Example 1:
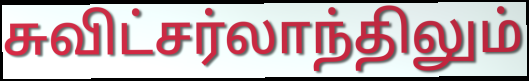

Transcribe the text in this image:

சுவிட்சர்லாந்திலும்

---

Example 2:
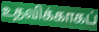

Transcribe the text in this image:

உதவிக்காகப்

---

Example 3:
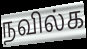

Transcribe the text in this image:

நவில்க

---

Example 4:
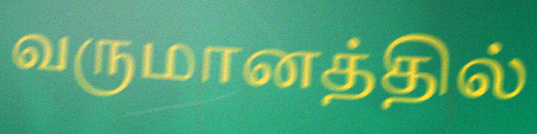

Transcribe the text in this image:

வருமானத்தில்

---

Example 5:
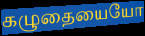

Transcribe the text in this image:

கழுதையையோ